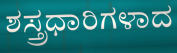
ಶಸ್ತ್ರಧಾರಿಗಳಾದ